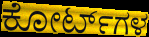
ಕೋರ್ಟ್‌ಗಳ